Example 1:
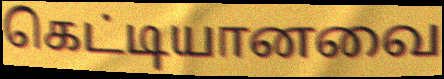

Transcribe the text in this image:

கெட்டியானவை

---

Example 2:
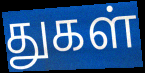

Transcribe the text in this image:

துகள்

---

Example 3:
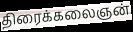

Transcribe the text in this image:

திரைக்கலைஞன்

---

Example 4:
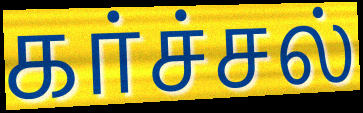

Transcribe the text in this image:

கர்ச்சல்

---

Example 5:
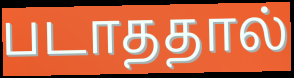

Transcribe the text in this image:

படாததால்